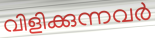
വിളിക്കുന്നവർ